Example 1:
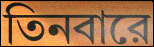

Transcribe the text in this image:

তিনবারে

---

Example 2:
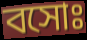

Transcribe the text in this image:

বসোঃ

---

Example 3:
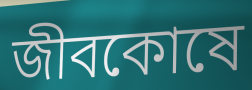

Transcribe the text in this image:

জীবকোষে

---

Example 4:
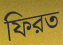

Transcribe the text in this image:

ফিরত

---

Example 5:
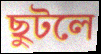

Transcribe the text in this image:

ছুটলে